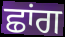
ਛਾਂਗ